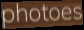
photoes